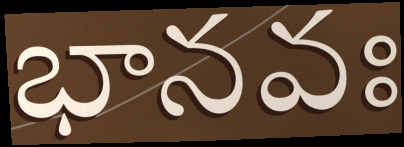
భానవః